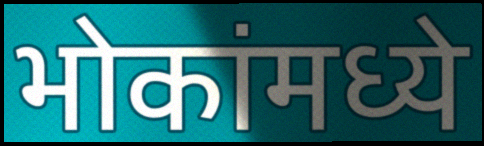
भोकांमध्ये